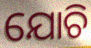
ଯୋଚି